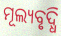
ମୂଲ୍ୟବୃଦ୍ଧି